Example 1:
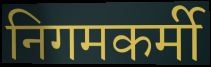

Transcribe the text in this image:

निगमकर्मी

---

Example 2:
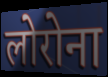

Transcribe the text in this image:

लोरोना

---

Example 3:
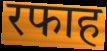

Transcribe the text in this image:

रफाह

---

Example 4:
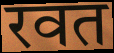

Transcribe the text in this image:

रवत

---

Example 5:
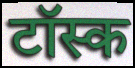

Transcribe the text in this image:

टॉस्‍क